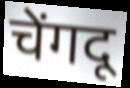
चेंगदू